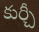
కుర్చీ